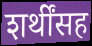
शर्थींसह